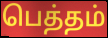
பெத்தம்